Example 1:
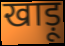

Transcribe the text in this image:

खाड़ू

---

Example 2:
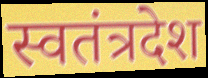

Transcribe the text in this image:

स्वतंत्रदेश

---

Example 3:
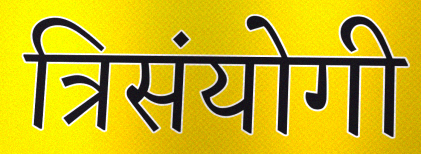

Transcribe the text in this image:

त्रिसंयोगी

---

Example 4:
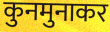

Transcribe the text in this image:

कुनमुनाकर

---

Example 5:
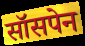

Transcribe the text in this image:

सॉसपेन